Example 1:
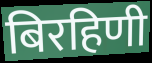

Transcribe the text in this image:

बिरहिणी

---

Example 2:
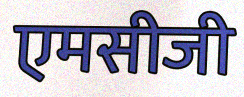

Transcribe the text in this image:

एमसीजी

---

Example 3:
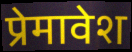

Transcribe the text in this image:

प्रेमावेश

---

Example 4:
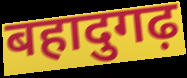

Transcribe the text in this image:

बहादुगढ़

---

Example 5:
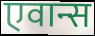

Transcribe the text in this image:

एवान्स